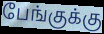
பேங்குக்கு